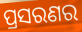
ପ୍ରସରଣର